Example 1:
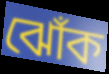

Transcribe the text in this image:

ঝোঁক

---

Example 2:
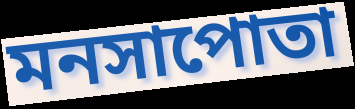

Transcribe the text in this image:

মনসাপোতা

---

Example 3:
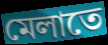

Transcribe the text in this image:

মেলাতে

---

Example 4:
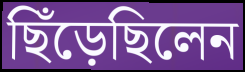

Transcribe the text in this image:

ছিঁড়েছিলেন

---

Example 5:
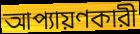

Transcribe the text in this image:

আপ্যায়ণকারী